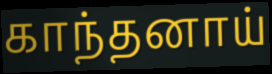
காந்தனாய்